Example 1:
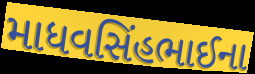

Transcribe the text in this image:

માધવસિંહભાઈના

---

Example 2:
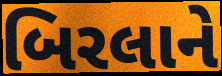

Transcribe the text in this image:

બિરલાને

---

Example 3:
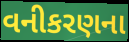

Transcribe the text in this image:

વનીકરણના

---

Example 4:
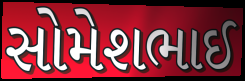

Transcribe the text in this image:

સોમેશભાઈ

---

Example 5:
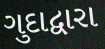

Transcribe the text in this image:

ગુદાદ્વારા